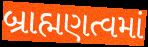
બ્રાહ્મણત્વમાં